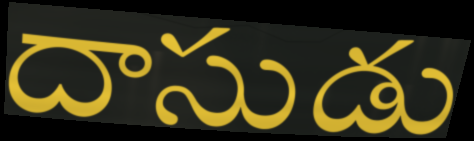
దాసుడు